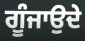
ਗੂੰਜਾਉਦੇ